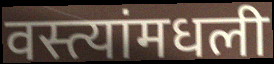
वस्त्यांमधली